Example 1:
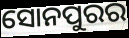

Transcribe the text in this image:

ସୋନପୁରର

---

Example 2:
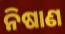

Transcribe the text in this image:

ନିଷାଣ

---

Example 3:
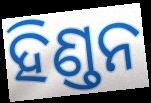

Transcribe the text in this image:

ହିଣ୍ଡନ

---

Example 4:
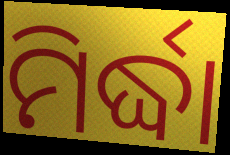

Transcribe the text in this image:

ମିର୍ଦ୍ଧା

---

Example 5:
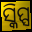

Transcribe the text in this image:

ସ୍କିପ୍ସ